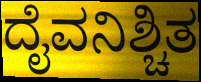
ದೈವನಿಶ್ಚಿತ